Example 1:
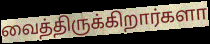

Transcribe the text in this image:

வைத்திருக்கிறார்களா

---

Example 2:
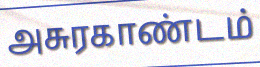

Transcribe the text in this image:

அசுரகாண்டம்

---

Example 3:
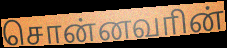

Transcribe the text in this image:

சொன்னவரின்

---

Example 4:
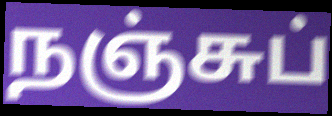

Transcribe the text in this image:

நஞ்சுப்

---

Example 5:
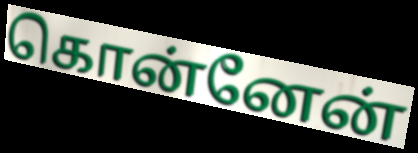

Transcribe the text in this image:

கொன்னேன்